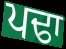
ਪਢਾ